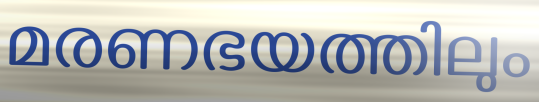
മരണഭയത്തിലും